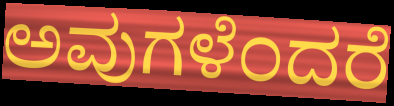
ಅವುಗಳೆಂದರೆ